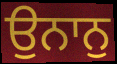
ਉਨਾਨੁ